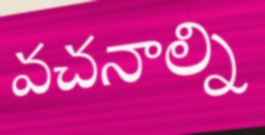
వచనాల్ని